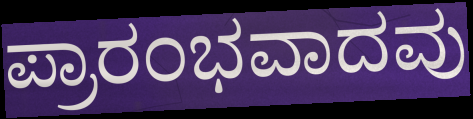
ಪ್ರಾರಂಭವಾದವು